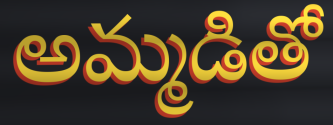
అమ్మడితో